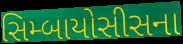
સિમ્બાયોસીસના